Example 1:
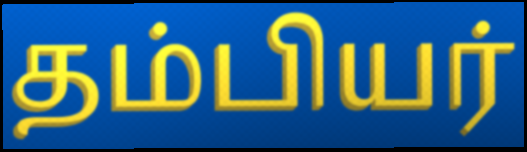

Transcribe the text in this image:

தம்பியர்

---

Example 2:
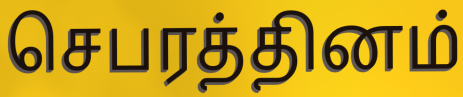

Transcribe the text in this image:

செபரத்தினம்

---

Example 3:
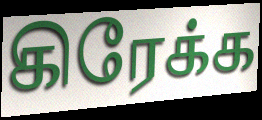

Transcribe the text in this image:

கிரேக்க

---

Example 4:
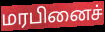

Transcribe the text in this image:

மரபினைச்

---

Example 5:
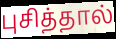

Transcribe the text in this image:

புசித்தால்